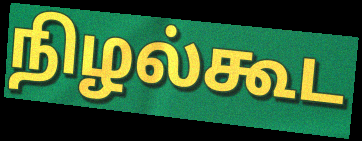
நிழல்கூட